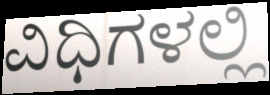
ವಿಧಿಗಳಲ್ಲಿ